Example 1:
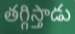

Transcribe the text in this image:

తగ్గిస్తాడు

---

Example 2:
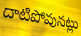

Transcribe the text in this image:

దాటిపోవునట్లు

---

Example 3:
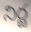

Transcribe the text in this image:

నిర్జ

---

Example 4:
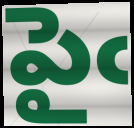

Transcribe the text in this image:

పైఁ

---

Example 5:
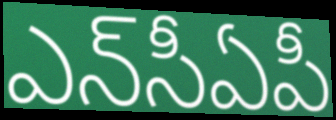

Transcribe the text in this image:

ఎన్‌సీఏపీ